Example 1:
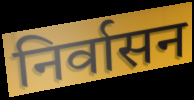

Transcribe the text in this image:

निर्वासन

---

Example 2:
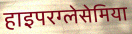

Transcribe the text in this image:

हाइपरग्लेसेमिया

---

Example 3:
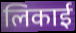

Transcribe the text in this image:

लिकाई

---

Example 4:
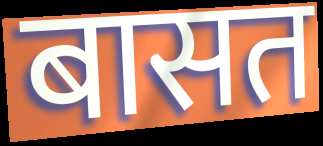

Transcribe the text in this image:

बासत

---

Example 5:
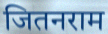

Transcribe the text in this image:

जितनराम